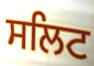
ਸਲਿਟ